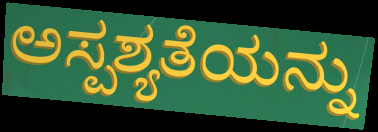
ಅಸ್ಪಶ್ಯತೆಯನ್ನು